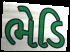
ભેડિ